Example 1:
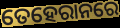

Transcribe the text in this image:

ତେହେରାନରେ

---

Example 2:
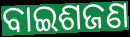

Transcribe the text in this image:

ବାଇଶଜଣ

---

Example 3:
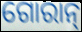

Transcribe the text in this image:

ଗୋରାନ୍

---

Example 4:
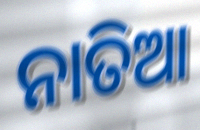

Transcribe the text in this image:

ନାତିଆ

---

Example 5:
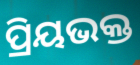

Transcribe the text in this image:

ପ୍ରିୟଭକ୍ତ